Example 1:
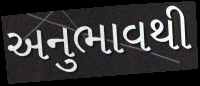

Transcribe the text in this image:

અનુભાવથી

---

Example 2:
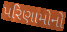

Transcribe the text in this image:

પરિણામોનો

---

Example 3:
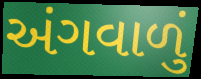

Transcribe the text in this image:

અંગવાળું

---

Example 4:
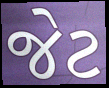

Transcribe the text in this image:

જેટ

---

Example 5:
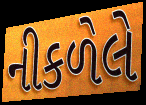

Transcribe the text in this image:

નીકળેલે